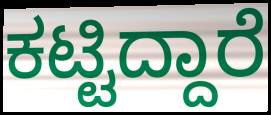
ಕಟ್ಟಿದ್ದಾರೆ